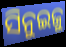
ସିନୁଇଜୁ